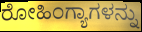
ರೋಹಿಂಗ್ಯಾಗಳನ್ನು